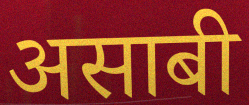
असाबी